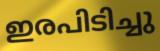
ഇരപിടിച്ചു